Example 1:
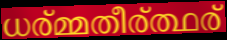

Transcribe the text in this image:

ധര്മ്മതീര്ത്ഥര്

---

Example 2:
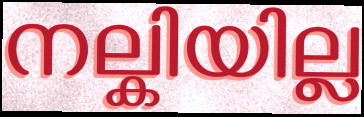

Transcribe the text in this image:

നല്കിയില്ല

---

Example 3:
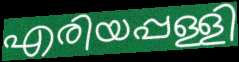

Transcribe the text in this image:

എരിയപ്പള്ളി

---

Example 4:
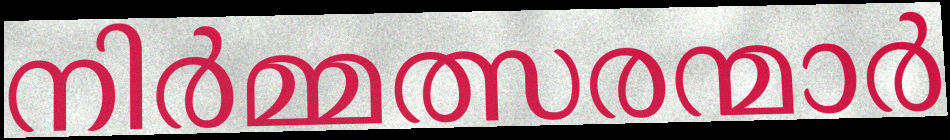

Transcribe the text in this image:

നിർമ്മത്സരന്മാർ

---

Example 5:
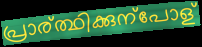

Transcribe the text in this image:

പ്രാര്ത്ഥിക്കുന്പോള്